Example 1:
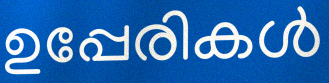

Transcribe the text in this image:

ഉപ്പേരികൾ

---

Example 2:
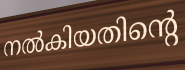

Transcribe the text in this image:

നൽകിയതിന്റെ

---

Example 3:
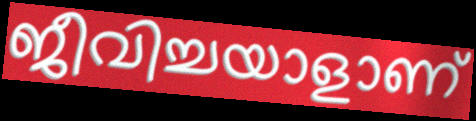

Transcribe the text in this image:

ജീവിച്ചയാളാണ്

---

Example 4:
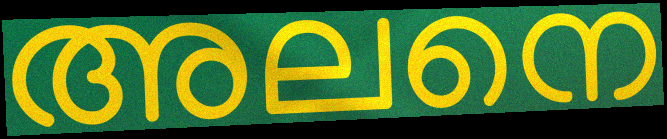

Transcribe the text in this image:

അലനെ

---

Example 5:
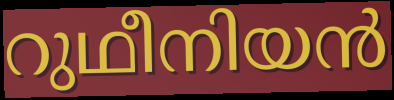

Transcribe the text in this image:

റുഥീനിയൻ